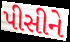
પીસીને